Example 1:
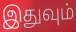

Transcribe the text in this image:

இதுவும்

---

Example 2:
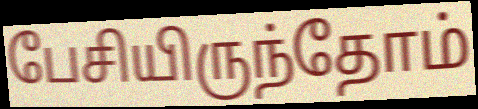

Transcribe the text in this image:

பேசியிருந்தோம்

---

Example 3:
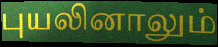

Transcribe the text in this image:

புயலினாலும்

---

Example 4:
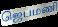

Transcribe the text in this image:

ஜெபமணி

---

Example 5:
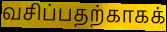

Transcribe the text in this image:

வசிப்பதற்காகக்